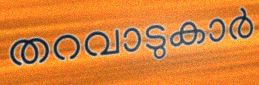
തറവാടുകാർ